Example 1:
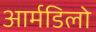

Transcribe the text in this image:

आर्मडिलो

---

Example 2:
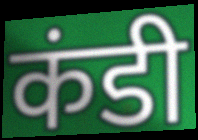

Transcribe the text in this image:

कंडी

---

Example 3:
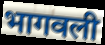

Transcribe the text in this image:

भागवली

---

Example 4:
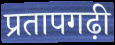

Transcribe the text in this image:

प्रतापगढ़ी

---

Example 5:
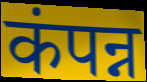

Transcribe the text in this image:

कंपन्न